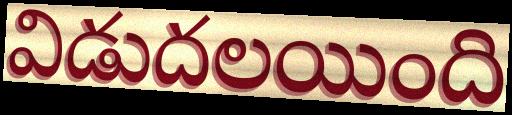
విడుదలయింది